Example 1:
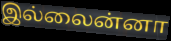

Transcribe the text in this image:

இல்லைன்னா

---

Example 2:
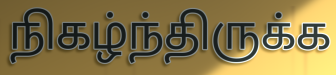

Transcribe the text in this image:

நிகழ்ந்திருக்க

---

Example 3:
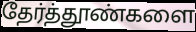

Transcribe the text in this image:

தேர்த்தூண்களை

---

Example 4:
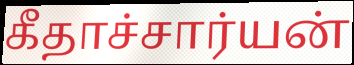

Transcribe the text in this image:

கீதாச்சார்யன்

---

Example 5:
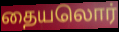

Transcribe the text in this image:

தையலொர்